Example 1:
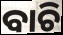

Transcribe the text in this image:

ବାଚି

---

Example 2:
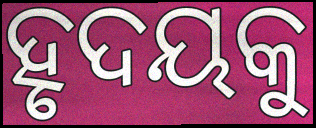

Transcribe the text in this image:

ହୃଦୟକୁ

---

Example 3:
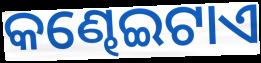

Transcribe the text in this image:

କଣ୍ଢେଇଟାଏ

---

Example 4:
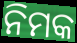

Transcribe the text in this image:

ନିମକ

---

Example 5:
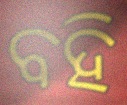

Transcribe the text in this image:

ବହି